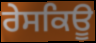
ਰੇਸਕਿਊ